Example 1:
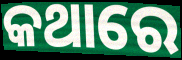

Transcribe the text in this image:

କଥାରେ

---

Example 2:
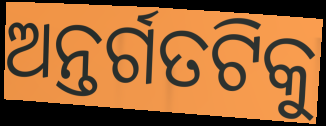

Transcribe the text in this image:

ଅନ୍ତର୍ଗତଟିକୁ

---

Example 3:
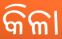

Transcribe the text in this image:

କିଳା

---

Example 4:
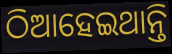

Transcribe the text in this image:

ଠିଆହେଇଥାନ୍ତି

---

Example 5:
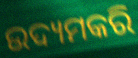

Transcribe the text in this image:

ଉଦ୍ୟମକରି